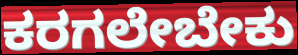
ಕರಗಲೇಬೇಕು